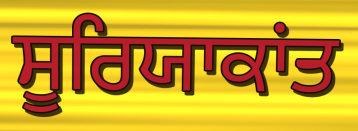
ਸੂਰਿਯਾਕਾਂਤ